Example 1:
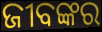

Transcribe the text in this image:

ଜୀବଙ୍କର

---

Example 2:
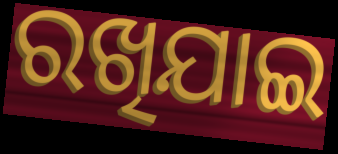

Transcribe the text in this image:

ରଖିଯାଇ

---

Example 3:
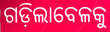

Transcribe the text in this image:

ଗଡ଼ିଲାବେଳକୁ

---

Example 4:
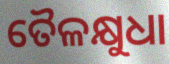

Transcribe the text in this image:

ତୈଳକ୍ଷୁଧା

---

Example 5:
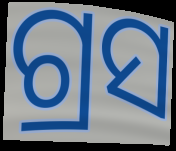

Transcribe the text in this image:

ଗ୍ରସ